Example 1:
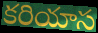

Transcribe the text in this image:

కరియాస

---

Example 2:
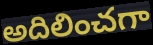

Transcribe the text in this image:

అదిలించగా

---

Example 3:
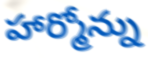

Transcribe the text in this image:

హార్మోన్ను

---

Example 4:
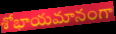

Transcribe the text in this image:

శోభాయమానంగా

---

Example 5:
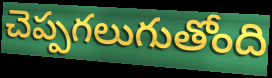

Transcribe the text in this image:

చెప్పగలుగుతోంది